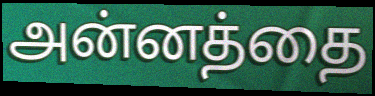
அன்னத்தை